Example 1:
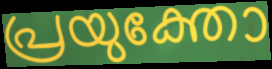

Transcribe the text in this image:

പ്രയുക്തോ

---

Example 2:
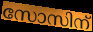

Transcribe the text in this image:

സോസിന്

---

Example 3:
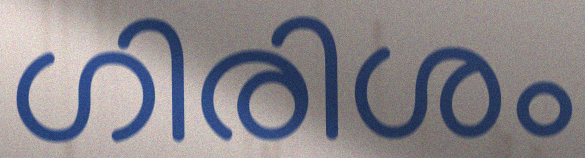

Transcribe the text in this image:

ഗിരിശം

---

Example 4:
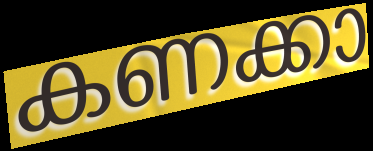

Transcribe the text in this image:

കണക്കാ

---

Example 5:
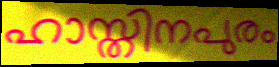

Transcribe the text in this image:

ഹാസ്തിനപുരം